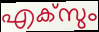
എക്‌സും